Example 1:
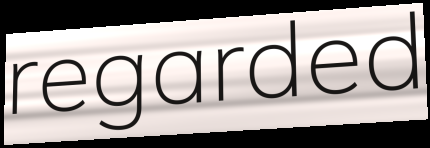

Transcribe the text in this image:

regarded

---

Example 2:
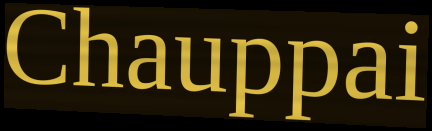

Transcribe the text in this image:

Chauppai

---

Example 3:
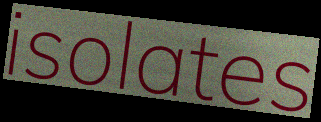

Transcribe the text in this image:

isolates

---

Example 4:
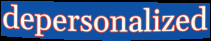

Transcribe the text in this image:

depersonalized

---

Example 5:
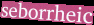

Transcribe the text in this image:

seborrheic